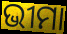
ଭୀମା